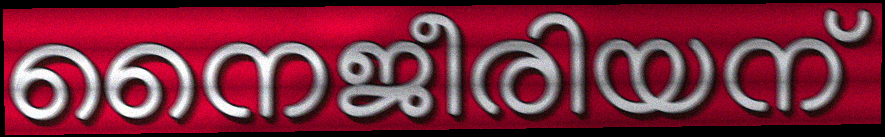
നൈജീരിയന്